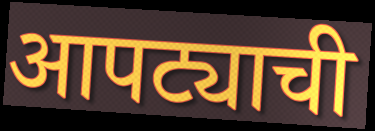
आपट्याची